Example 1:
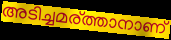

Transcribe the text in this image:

അടിച്ചമര്ത്താനാണ്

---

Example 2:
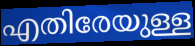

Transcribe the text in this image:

എതിരേയുള്ള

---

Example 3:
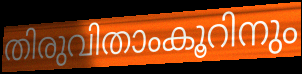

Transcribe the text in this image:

തിരുവിതാംകൂറിനും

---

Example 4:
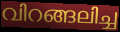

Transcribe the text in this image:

വിറങ്ങലിച്ച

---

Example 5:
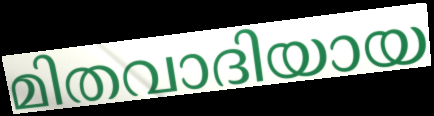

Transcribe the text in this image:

മിതവാദിയായ